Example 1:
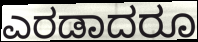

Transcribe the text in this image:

ಎರಡಾದರೂ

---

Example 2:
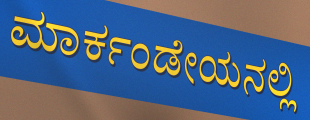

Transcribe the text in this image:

ಮಾರ್ಕಂಡೇಯನಲ್ಲಿ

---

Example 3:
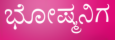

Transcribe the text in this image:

ಭೋಷ್ಮನಿಗ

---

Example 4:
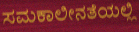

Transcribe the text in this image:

ಸಮಕಾಲೀನತೆಯಲ್ಲಿ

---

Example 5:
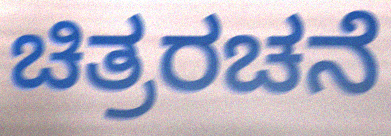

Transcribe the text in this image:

ಚಿತ್ರರಚನೆ